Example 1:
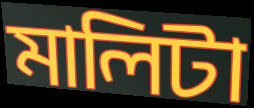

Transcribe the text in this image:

মালিটা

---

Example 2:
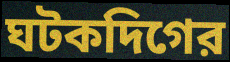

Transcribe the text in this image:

ঘটকদিগের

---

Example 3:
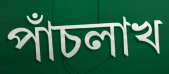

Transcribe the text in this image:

পাঁচলাখ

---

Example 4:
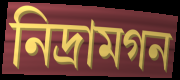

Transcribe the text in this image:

নিদ্রামগন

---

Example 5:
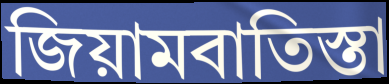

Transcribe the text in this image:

জিয়ামবাতিস্তা